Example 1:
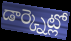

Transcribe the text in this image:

డార్క్నెట్లో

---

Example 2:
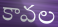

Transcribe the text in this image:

కావల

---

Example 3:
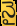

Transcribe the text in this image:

నై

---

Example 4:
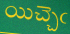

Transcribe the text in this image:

యిచ్చెఁ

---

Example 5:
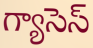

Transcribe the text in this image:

గ్యాసెస్